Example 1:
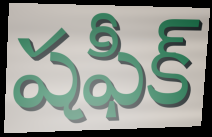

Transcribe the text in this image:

షఫీక్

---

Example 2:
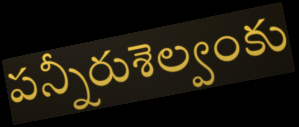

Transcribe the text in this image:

పన్నీరుశెల్వంకు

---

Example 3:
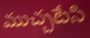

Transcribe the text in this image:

ముచ్చటేసి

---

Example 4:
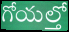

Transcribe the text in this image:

గోయల్తో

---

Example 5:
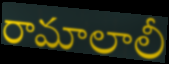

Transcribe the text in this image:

రామాలాలీ